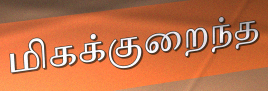
மிகக்குறைந்த